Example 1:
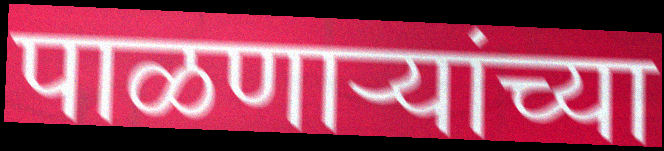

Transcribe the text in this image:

पाळणाऱ्यांच्या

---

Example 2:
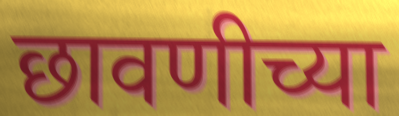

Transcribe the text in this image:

छावणीच्या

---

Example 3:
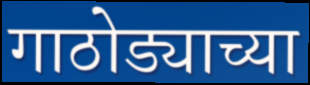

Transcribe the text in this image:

गाठोड्याच्या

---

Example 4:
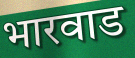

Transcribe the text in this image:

भारवाड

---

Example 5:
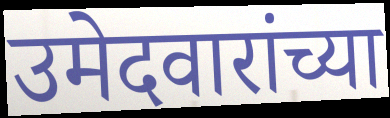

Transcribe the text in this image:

उमेदवारांच्या